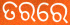
ତରରେ